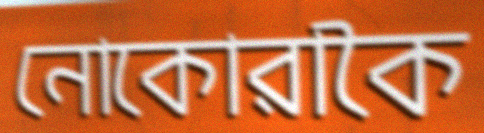
নোকোৱাকৈ